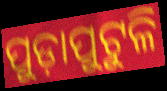
ପୁଡ଼ାପୁଟୁଳି